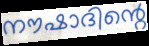
നൗഷാദിന്റെ